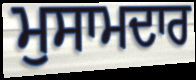
ਮੁਸਾਮਦਾਰ